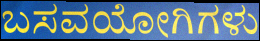
ಬಸವಯೋಗಿಗಳು